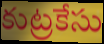
కుట్రకేసు